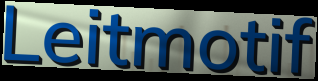
Leitmotif